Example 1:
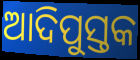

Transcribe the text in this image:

ଆଦିପୁସ୍ତକ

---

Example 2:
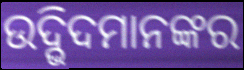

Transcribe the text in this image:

ଉଦ୍ଭିଦମାନଙ୍କର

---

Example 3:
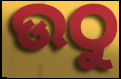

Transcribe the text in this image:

ଉଠୁ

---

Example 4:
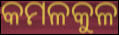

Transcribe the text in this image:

କମଳକୁଳ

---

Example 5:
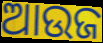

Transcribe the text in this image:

ଆଉଜ